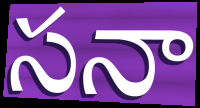
సనా